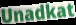
Unadkat